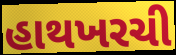
હાથખરચી